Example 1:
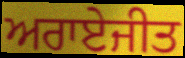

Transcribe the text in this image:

ਅਰਾਏਜੀਤ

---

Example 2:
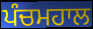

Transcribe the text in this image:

ਪੰਚਮਹਾਲ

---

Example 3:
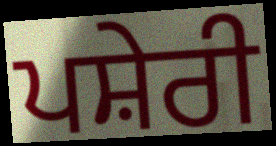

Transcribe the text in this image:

ਪਸ਼ੇਰੀ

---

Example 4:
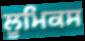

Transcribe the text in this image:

ਲੂਮਿਕਸ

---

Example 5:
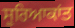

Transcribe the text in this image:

ਸੂਰਿਆਕਾਂਤ